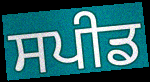
ਸਪੀਡ